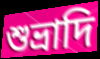
শুভ্রাদি